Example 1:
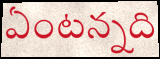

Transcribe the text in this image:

ఏంటన్నది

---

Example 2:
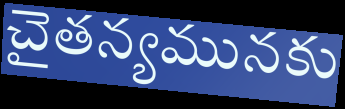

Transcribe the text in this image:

చైతన్యమునకు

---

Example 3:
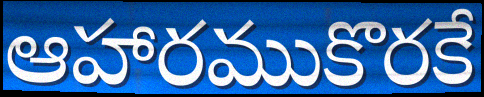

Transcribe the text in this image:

ఆహారముకొరకే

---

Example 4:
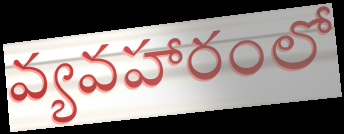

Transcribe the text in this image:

వ్యవహారంలో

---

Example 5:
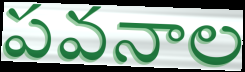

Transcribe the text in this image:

పవనాల